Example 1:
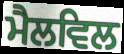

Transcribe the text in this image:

ਮੈਲਵਿਲ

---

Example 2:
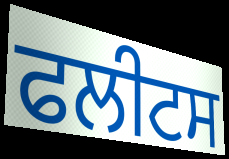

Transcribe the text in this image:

ਫਲੀਟਸ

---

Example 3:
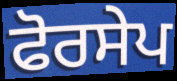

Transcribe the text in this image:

ਫੋਰਸੇਪ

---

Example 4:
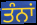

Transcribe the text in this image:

ਤੰਨਾਂ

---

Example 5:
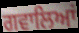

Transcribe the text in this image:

ਗਵਾਲਿਆਂ